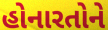
હોનારતોને